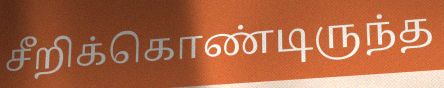
சீறிக்கொண்டிருந்த